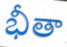
భీతా